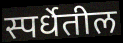
स्पर्धेतील